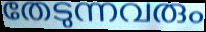
തേടുന്നവരും